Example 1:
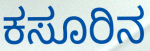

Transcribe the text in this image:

ಕಸೂರಿನ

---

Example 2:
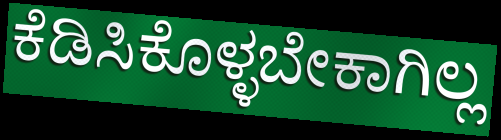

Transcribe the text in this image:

ಕೆಡಿಸಿಕೊಳ್ಳಬೇಕಾಗಿಲ್ಲ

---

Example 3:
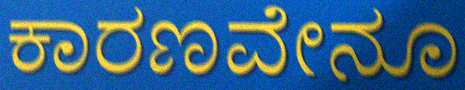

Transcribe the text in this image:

ಕಾರಣವೇನೂ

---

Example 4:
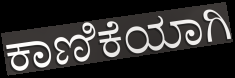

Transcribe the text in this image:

ಕಾಣಿಕೆಯಾಗಿ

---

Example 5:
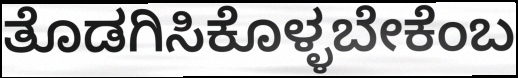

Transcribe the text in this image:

ತೊಡಗಿಸಿಕೊಳ್ಳಬೇಕೆಂಬ